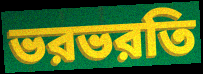
ভরভরতি